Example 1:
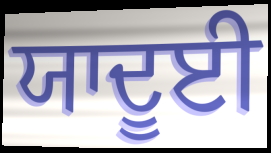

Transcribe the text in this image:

ਯਾਦੂਈ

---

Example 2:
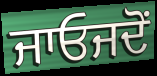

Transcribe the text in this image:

ਜਾਓਜਦੋਂ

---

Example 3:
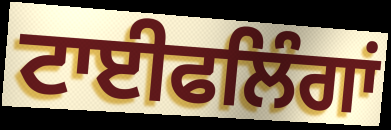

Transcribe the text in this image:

ਟਾਈਫਲਿੰਗਾਂ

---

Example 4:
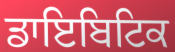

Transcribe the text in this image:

ਡਾਇਬਿਟਿਕ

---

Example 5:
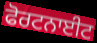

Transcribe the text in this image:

ਫੋਰਟਨਾਈਟ